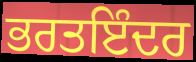
ਭਰਤਇੰਦਰ